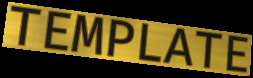
TEMPLATE